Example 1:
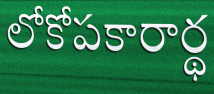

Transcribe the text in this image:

లోకోపకారార్థ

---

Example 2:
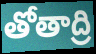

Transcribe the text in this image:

తోతాద్రి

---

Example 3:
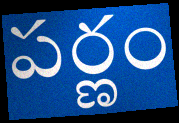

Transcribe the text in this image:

పర్ణం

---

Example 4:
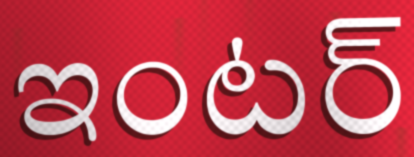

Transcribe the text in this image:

ఇంటర్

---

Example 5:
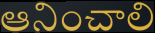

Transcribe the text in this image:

ఆనించాలి